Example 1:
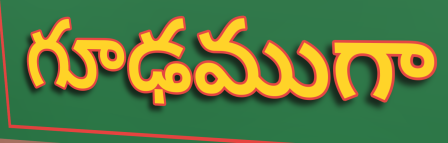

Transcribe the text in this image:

గూఢముగా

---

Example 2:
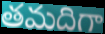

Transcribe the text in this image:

తమదిగా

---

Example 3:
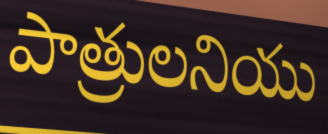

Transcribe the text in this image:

పాత్రులనియు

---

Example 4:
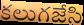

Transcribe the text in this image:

కలుగజేసి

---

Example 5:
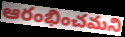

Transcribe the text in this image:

ఆరంభించమని